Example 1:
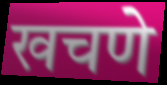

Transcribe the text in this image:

खचणे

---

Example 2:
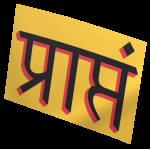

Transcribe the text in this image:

प्राप्तं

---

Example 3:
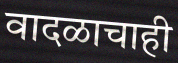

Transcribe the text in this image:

वादळाचाही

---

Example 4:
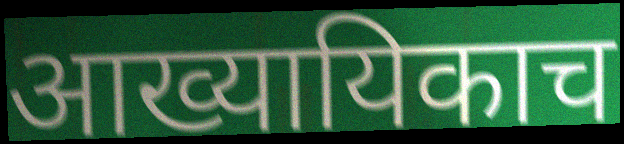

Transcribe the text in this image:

आख्यायिकाच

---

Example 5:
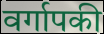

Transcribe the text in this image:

वर्गापकी